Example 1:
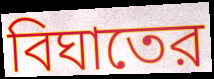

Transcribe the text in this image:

বিঘাতের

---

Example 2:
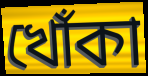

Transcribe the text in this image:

খোঁকা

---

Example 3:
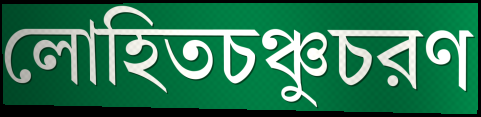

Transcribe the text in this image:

লোহিতচঞ্চুচরণ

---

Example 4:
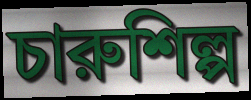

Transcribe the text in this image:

চারুশিল্প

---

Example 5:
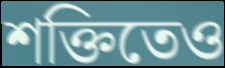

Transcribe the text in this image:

শক্তিতেও